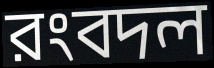
রংবদল